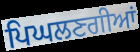
ਪਿਘਲਣਗੀਆਂ